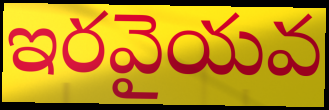
ఇరవైయవ